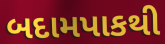
બદામપાકથી